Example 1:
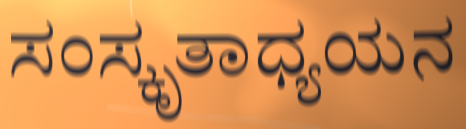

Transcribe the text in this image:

ಸಂಸ್ಕೃತಾಧ್ಯಯನ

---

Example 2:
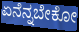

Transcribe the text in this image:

ಏನೆನ್ನಬೇಕೋ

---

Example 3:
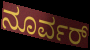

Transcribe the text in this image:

ನೂರ್ವರ್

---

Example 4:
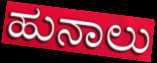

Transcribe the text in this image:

ಹುನಾಲು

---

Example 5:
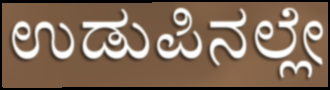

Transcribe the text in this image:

ಉಡುಪಿನಲ್ಲೇ